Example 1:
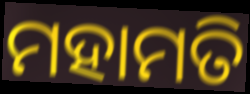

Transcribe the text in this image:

ମହାମତି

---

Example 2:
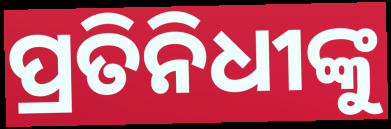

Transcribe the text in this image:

ପ୍ରତିନିଧୀଙ୍କୁ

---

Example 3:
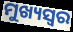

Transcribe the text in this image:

ମୁଖ୍ୟସ୍ୱର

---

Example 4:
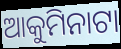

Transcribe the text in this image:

ଆକୁମିନାଟା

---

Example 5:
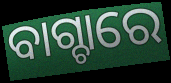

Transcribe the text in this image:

ବାଗ୍ଚାରେ